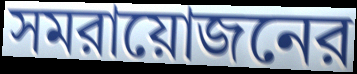
সমরায়োজনের